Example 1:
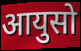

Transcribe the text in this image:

आयुसो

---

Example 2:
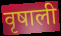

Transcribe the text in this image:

वृषाली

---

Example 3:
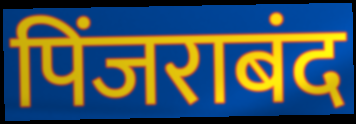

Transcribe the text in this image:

पिंजराबंद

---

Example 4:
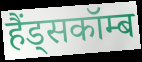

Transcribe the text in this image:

हैंड्सकॉम्ब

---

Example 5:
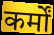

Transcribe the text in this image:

कर्मों